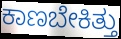
ಕಾಣಬೇಕಿತ್ತು